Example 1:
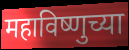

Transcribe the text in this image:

महाविष्णुच्या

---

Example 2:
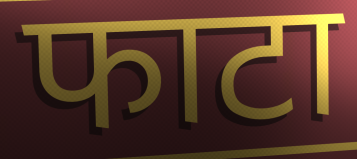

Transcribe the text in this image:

फाटा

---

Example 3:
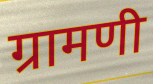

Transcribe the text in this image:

ग्रामणी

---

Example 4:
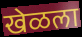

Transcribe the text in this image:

खेळला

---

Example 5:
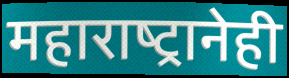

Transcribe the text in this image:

महाराष्ट्रानेही